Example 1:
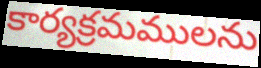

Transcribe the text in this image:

కార్యక్రమములను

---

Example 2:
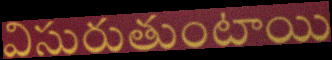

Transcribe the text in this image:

విసురుతుంటాయి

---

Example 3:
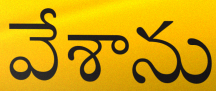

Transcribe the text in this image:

వేశాను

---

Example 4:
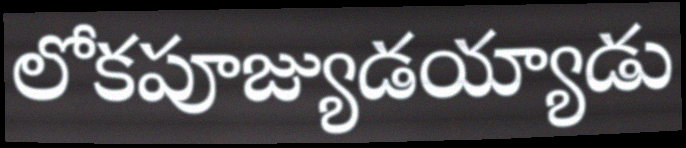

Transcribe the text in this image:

లోకపూజ్యుడయ్యాడు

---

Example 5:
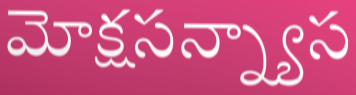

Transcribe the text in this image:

మోక్షసన్న్యాస